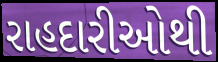
રાહદારીઓથી